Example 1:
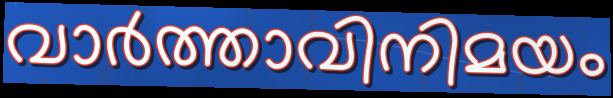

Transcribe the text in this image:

വാർത്താവിനിമയം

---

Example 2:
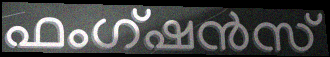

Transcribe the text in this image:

ഫംഗ്ഷൻസ്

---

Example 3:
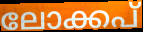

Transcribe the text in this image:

ലോക്കപ്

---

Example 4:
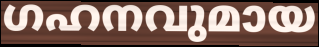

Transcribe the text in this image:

ഗഹനവുമായ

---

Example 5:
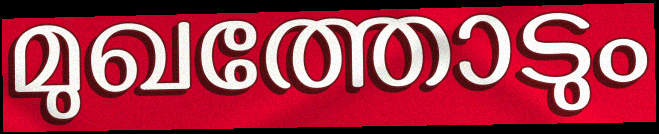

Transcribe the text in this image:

മുഖത്തോടും